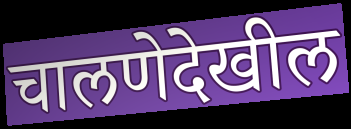
चालणेदेखील